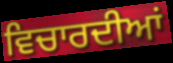
ਵਿਚਾਰਦੀਆਂ